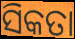
ସିକତା